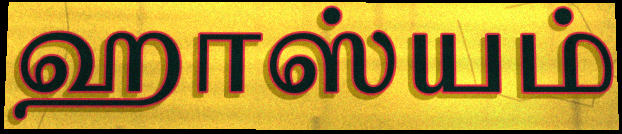
ஹாஸ்யம்